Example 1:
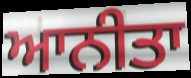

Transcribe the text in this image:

ਆਨੀਤਾ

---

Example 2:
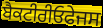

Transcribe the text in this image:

ਬੈਕਟੀਰੀਓਫੇਜਸ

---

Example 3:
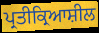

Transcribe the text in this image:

ਪ੍ਰਤੀਕ੍ਰਿਆਸ਼ੀਲ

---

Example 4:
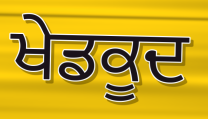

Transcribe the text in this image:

ਖੇਡਕੂਦ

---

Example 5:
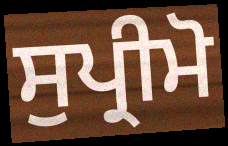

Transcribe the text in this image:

ਸੁਪ੍ਰੀਮੋ